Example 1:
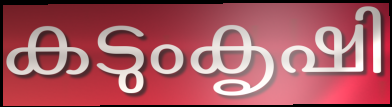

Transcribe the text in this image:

കടുംകൃഷി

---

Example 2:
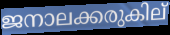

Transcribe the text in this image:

ജനാലക്കരുകില്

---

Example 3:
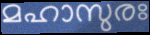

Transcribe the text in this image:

മഹാസുരഃ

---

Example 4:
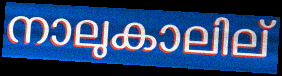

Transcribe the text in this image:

നാലുകാലില്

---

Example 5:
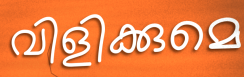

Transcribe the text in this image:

വിളിക്കുമെ